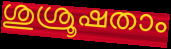
ശുശ്രൂഷതാം